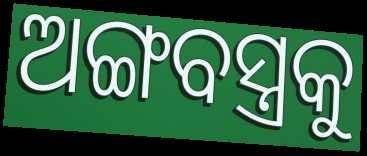
ଅଙ୍ଗବସ୍ତ୍ରକୁ